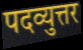
पदव्युत्तर